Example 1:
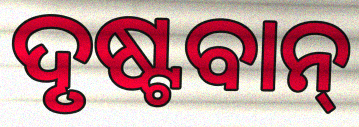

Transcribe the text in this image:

ଦୃଷ୍ଟବାନ୍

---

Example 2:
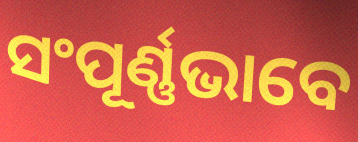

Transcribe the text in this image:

ସଂପୂର୍ଣ୍ଣଭାବେ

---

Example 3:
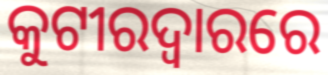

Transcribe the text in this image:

କୁଟୀରଦ୍ୱାରରେ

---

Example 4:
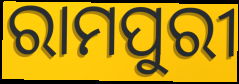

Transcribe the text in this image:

ରାମପୁରୀ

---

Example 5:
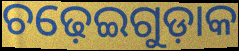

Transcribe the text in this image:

ଚଢ଼େଇଗୁଡ଼ାକ